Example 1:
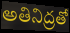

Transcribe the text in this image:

అతినిద్రతో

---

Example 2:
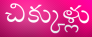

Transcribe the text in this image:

చిక్కుళ్లు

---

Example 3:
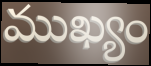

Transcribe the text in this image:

ముఖ్యం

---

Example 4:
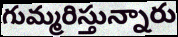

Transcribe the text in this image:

గుమ్మరిస్తున్నారు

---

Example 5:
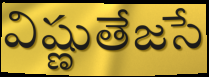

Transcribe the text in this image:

విష్ణుతేజసే